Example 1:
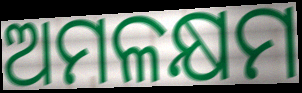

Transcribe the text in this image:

ଅମଳକ୍ଷମ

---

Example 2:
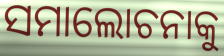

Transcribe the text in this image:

ସମାଲୋଚନାକୁ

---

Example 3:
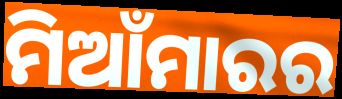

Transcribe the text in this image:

ମିଆଁମାରର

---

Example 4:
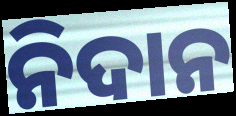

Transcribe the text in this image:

ନିଦାନ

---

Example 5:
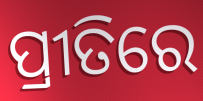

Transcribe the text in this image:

ପ୍ରୀତିରେ